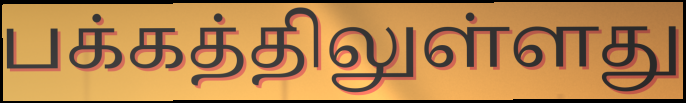
பக்கத்திலுள்ளது